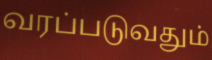
வரப்படுவதும்